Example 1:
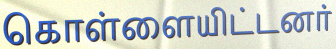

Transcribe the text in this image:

கொள்ளையிட்டனர்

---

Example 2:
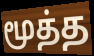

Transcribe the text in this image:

மூத்த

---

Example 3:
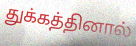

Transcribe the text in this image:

துக்கத்தினால்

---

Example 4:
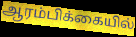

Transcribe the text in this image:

ஆரம்பிக்கையில்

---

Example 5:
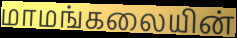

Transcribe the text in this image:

மாமங்கலையின்